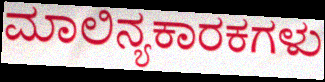
ಮಾಲಿನ್ಯಕಾರಕಗಳು